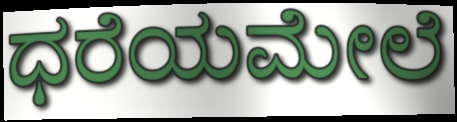
ಧರೆಯಮೇಲೆ